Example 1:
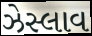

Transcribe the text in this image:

ઝેસ્લાવ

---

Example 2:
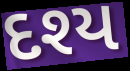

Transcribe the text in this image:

દશ્ય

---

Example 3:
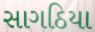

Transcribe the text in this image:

સાગઠિયા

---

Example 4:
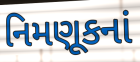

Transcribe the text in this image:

નિમણૂકનાં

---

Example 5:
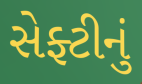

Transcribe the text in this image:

સેફ્ટીનું